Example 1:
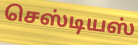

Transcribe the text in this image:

செஸ்டியஸ்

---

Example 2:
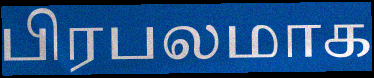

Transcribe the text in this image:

பிரபலமாக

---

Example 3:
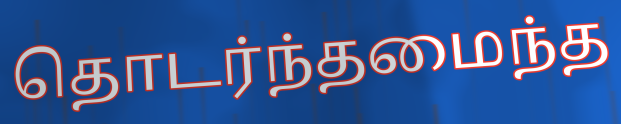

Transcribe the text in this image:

தொடர்ந்தமைந்த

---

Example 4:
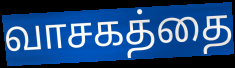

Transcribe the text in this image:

வாசகத்தை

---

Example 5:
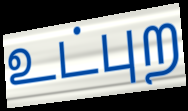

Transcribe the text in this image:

உட்புற